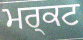
ਮਰ੍ਕਟ